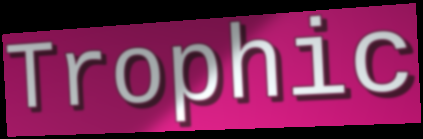
Trophic